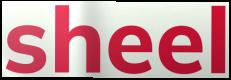
sheel